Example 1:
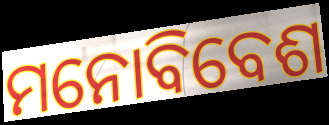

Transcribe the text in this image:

ମନୋବିବେଶ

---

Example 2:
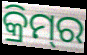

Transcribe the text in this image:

କ୍ରିମ୍‌ର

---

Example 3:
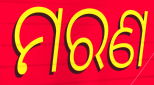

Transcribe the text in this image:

ମରଣ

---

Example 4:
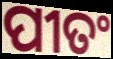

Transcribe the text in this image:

ପୀତଂ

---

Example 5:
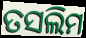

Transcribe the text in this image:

ତସଲିମ